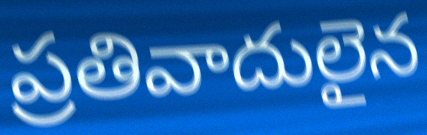
ప్రతివాదులైన